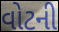
વોટની